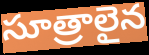
సూత్రాలైన